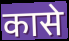
कासे